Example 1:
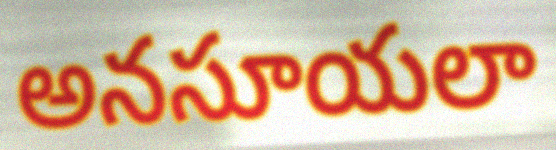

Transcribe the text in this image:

అనసూయలా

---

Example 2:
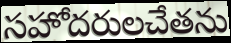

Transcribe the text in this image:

సహోదరులచేతను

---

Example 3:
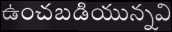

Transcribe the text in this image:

ఉంచబడియున్నవి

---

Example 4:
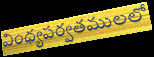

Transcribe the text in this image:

వింధ్యపర్వతములలో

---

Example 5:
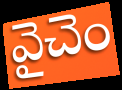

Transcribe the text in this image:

వైచెం